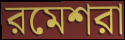
রমেশরা